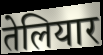
तेलियार